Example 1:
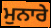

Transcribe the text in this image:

ਮੁਨਾਰੇ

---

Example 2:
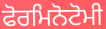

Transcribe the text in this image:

ਫੋਰਮਿਨੋਟੋਮੀ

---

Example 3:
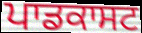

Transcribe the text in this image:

ਪਾਡਕਾਸਟ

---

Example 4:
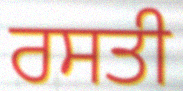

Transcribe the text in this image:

ਰਸਤੀ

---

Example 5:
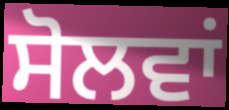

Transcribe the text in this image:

ਸੋਲਵਾਂ